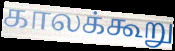
காலக்கூறு